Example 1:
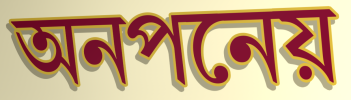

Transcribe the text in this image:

অনপনেয়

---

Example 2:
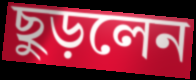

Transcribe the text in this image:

ছুড়লেন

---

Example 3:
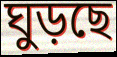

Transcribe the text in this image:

ঘুড়ছে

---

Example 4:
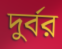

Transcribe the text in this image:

দুর্বর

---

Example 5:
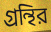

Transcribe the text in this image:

গ্রন্থির